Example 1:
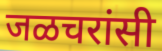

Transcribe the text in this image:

जळचरांसी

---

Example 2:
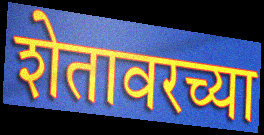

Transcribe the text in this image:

शेतावरच्या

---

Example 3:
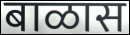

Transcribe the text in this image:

बाळास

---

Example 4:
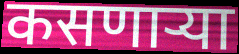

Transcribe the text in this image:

कसणाऱ्या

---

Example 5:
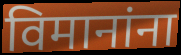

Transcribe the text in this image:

विमानांना